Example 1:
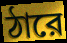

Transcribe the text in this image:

ঠারে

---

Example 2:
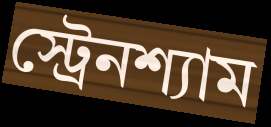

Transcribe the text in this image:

স্ট্রেনশ্যাম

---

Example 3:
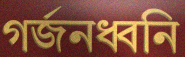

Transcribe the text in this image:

গর্জনধ্বনি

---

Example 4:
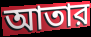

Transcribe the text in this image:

আতার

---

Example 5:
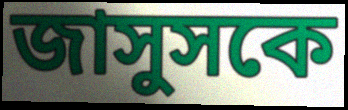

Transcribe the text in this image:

জাসুসকে